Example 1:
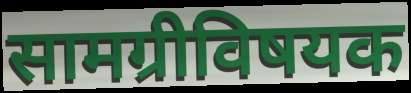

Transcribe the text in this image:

सामग्रीविषयक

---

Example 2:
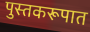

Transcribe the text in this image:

पुस्तकरूपात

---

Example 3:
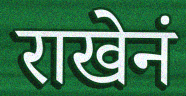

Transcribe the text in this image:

राखेनं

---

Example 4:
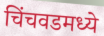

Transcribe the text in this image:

चिंचवडमध्ये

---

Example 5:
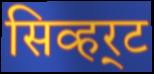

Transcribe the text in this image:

सिव्हर्ट